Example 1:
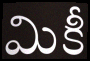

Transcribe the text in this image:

మికీ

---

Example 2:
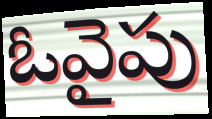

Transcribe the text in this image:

ఓవైపు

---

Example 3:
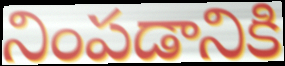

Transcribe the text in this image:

నింపడానికి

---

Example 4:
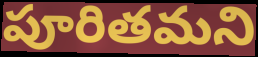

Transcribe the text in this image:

పూరితమని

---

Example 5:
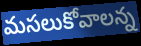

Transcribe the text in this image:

మసలుకోవాలన్న